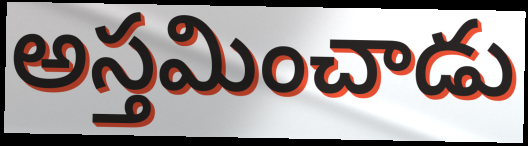
అస్తమించాడు